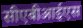
सीएबीआईएस